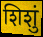
शिशुं